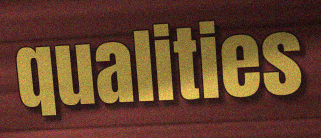
qualities